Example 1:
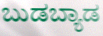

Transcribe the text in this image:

ಬುಡಬ್ಯಾಡ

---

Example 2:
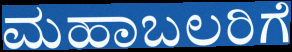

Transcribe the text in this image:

ಮಹಾಬಲರಿಗೆ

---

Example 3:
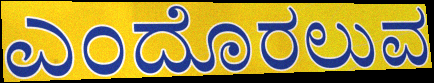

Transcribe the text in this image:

ಎಂದೊರಲುವ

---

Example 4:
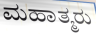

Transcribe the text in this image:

ಮಹಾತ್ಮರು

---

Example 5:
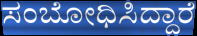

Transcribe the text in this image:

ಸಂಬೋಧಿಸಿದ್ದಾರೆ